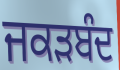
ਜਕੜਬੰਦ